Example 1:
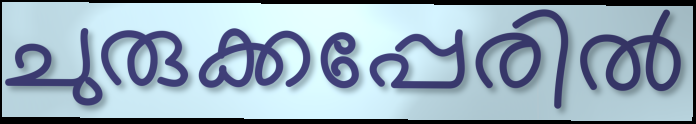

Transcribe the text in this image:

ചുരുക്കപ്പേരിൽ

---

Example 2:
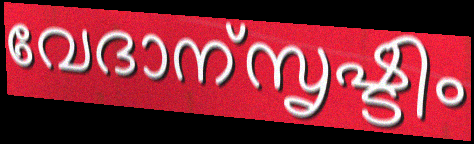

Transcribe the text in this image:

വേദാന്സൃഷ്ടിം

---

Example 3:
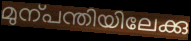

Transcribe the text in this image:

മുന്പന്തിയിലേക്കു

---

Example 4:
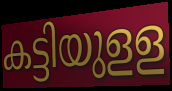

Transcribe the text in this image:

കട്ടിയുളള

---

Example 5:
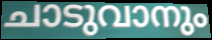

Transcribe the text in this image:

ചാടുവാനും